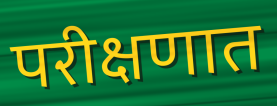
परीक्षणात